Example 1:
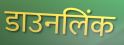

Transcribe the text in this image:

डाउनलिंक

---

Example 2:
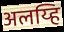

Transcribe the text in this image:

अलय्हि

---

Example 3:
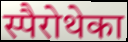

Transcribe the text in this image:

स्पैरोथेका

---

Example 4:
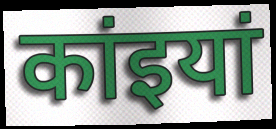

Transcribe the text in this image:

कांइयां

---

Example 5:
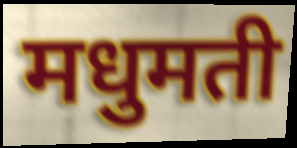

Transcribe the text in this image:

मधुमती